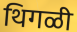
थिगळी